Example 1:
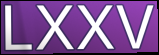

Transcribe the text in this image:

LXXV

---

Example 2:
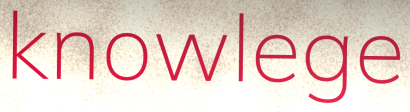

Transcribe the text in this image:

knowlege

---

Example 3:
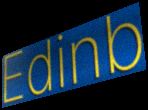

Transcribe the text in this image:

Edinb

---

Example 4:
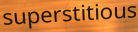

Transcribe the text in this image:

superstitious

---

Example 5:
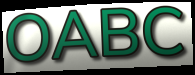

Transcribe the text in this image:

OABC